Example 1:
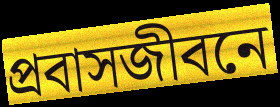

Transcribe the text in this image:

প্রবাসজীবনে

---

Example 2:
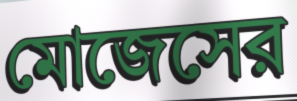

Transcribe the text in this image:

মোজেসের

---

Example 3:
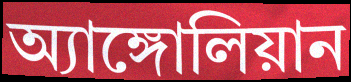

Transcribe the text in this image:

অ্যাঙ্গোলিয়ান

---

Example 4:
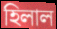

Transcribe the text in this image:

হিলাল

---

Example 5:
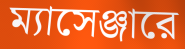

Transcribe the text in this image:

ম্যাসেঞ্জারে